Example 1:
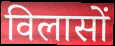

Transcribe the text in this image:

विलासों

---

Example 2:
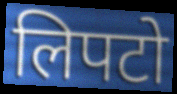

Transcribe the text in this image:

लिपटो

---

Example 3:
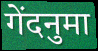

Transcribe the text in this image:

गेंदनुमा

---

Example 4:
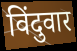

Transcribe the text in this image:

विंदुवार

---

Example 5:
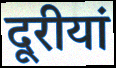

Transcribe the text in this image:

दूरीयां